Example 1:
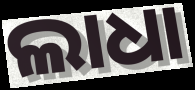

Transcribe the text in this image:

ଲାଧା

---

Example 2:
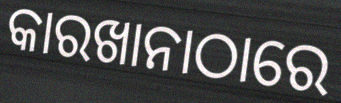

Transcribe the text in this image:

କାରଖାନାଠାରେ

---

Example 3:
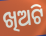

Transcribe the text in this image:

ଖିଅଟି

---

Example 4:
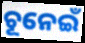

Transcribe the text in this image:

ଚୂନେଇଁ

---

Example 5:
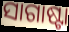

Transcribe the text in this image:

ସାଗାଷ୍ଟା